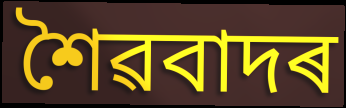
শৈৱবাদৰ